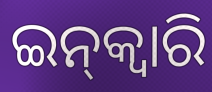
ଇନ୍‌କ୍ଵାରି